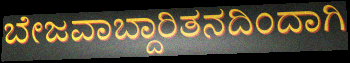
ಬೇಜವಾಬ್ದಾರಿತನದಿಂದಾಗಿ